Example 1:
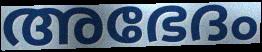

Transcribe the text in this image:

അഭേദം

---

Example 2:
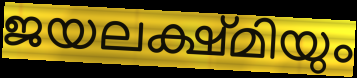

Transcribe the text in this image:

ജയലക്ഷ്മിയും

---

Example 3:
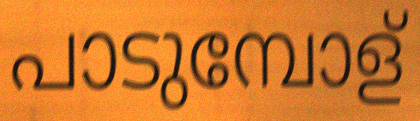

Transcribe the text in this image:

പാടുമ്പോള്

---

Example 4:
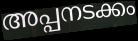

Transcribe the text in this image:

അപ്പനടക്കം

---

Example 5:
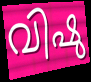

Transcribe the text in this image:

വിഷു